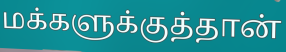
மக்களுக்குத்தான்